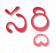
సర్ది